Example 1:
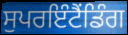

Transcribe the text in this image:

ਸੁਪਰਇੰਟੈਂਡਿੰਗ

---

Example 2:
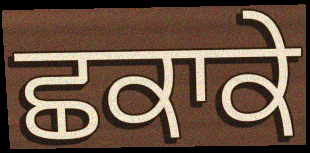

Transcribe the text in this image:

ਛਕਾਕੇ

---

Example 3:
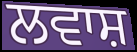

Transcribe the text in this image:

ਲਵਾਸ਼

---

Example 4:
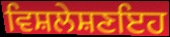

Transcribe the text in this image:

ਵਿਸ਼ਲੇਸ਼ਣਇਹ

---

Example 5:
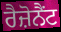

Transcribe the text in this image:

ਰੈਜ਼ੋਨੈਂਟ